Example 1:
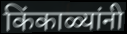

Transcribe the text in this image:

किंकाळ्यांनी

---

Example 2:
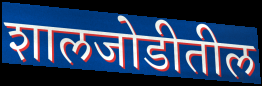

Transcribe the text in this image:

शालजोडीतील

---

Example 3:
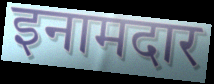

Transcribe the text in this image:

इनामदार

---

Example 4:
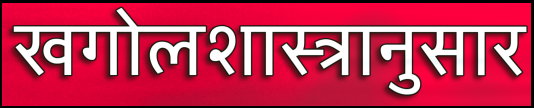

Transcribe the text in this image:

खगोलशास्त्रानुसार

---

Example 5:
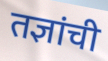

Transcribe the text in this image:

तज्ञांची